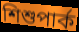
শিশুপার্ক